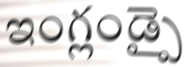
ఇంగ్లండ్పై